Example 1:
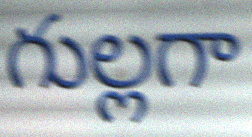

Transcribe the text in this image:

గుల్లగా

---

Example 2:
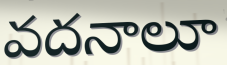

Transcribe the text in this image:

వదనాలూ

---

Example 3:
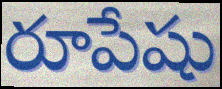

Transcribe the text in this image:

రూపేషు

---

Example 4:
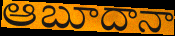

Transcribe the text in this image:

ఆబూదానా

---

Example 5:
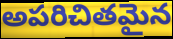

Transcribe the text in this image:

అపరిచితమైన